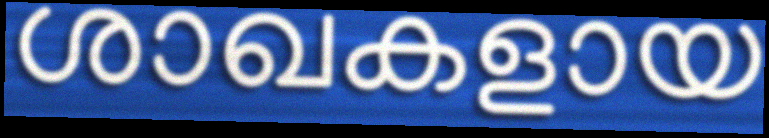
ശാഖകളായ